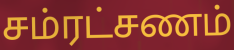
சம்ரட்சணம்